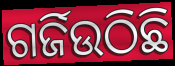
ଗର୍ଜିଉଠିଛି